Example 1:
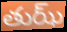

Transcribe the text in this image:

తుఝ్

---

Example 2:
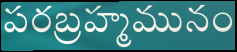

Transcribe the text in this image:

పరబ్రహ్మమునం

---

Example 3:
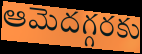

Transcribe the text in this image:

ఆమెదగ్గరకు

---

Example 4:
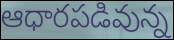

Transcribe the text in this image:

ఆధారపడివున్న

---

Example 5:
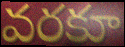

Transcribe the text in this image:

వరకూ